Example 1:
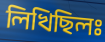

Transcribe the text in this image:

লিখিছিলঃ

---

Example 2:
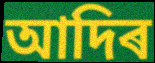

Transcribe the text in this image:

আদিৰ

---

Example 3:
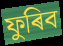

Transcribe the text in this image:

ফুৰিব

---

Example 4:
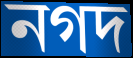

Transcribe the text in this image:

নগদ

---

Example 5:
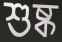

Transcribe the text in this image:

শুষ্ক